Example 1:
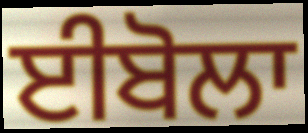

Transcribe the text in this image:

ਈਬੋਲਾ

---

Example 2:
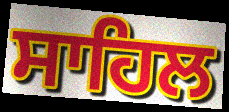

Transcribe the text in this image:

ਸਾਹਿਲ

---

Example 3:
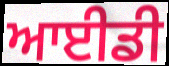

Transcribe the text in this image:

ਆਈਡੀ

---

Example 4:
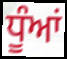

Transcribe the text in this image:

ਧੂੰਆਂ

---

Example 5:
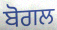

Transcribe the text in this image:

ਬੋਗਲ